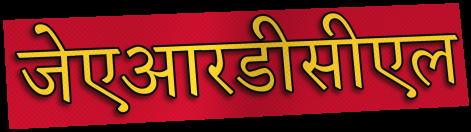
जेएआरडीसीएल